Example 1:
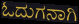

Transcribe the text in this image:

ಓದುಗನಾಗಿ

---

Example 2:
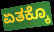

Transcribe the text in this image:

ಏತಕ್ಕೊ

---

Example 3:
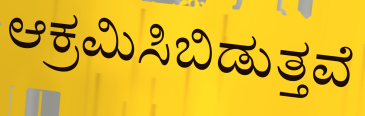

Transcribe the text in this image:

ಆಕ್ರಮಿಸಿಬಿಡುತ್ತವೆ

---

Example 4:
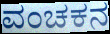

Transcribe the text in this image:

ವಂಚಕನ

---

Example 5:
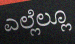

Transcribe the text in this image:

ಎಲ್ಲೆಲ್ಲೂ